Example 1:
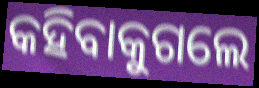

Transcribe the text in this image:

କହିବାକୁଗଲେ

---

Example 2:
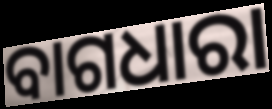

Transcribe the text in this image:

ବାଗଧାରା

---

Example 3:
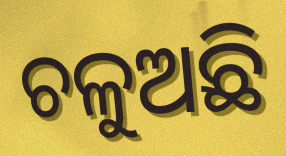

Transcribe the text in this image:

ଚଳୁଅଛି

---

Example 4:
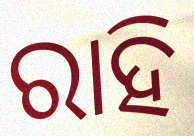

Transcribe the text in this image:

ରାହି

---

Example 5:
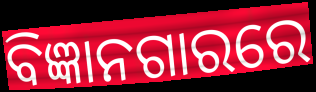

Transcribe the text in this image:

ବିଜ୍ଞାନଗାରରେ